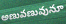
అణువణువునూ